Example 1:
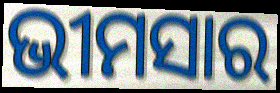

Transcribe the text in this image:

ଭୀମସାର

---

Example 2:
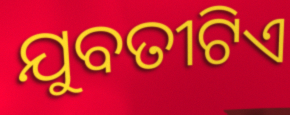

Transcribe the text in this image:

ଯୁବତୀଟିଏ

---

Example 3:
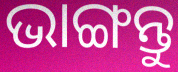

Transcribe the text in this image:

ଭାଙ୍ଗନ୍ତୁ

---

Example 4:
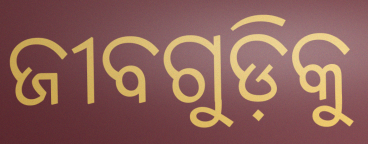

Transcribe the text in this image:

ଜୀବଗୁଡ଼ିକୁ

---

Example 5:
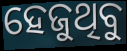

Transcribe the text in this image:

ହେଜୁଥିବୁ